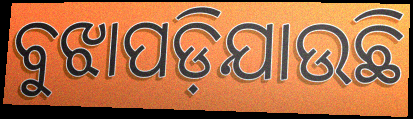
ବୁଝାପଡ଼ିଯାଉଛି